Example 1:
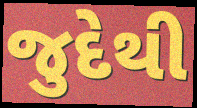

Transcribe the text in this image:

જુદેથી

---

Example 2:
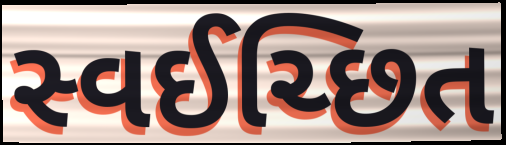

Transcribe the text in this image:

સ્વઈચ્છિત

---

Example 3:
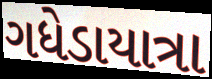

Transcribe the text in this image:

ગધેડાયાત્રા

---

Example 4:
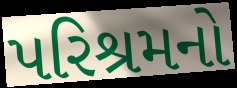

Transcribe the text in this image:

પરિશ્રમનો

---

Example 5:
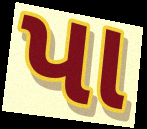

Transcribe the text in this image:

પા